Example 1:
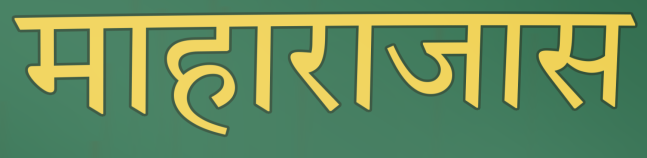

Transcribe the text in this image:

माहाराजास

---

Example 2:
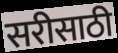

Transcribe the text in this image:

सरीसाठी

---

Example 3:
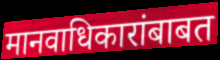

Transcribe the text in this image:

मानवाधिकारांबाबत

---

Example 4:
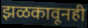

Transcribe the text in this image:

झळकावूनही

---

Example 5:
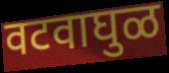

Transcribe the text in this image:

वटवाघुळ